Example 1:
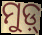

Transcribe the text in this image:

ମୁଡ଼୍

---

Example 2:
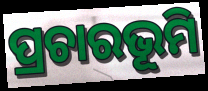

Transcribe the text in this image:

ପ୍ରଚାରଭୂମି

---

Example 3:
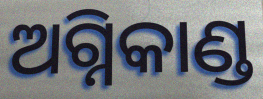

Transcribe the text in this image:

ଅଗ୍ନିକାଣ୍ଡ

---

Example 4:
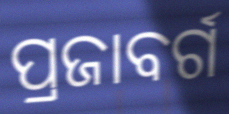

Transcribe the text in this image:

ପ୍ରଜାବର୍ଗ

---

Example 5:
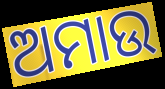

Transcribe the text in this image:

ଅମାଉ